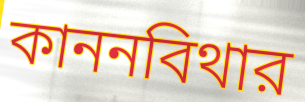
কাননবিথার